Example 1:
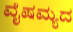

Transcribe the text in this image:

ವೈಷಮ್ಯದ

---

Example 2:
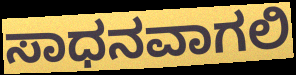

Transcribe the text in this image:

ಸಾಧನವಾಗಲಿ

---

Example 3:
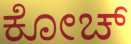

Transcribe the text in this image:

ಕೋಚ್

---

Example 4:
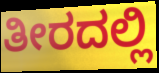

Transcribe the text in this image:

ತೀರದಲ್ಲಿ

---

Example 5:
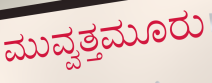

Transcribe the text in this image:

ಮುವ್ವತ್ತಮೂರು